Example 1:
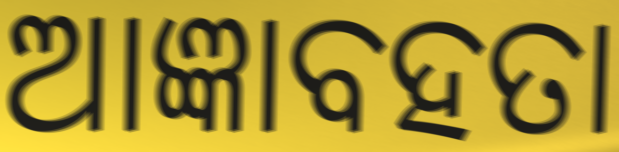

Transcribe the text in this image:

ଆଜ୍ଞାବହତା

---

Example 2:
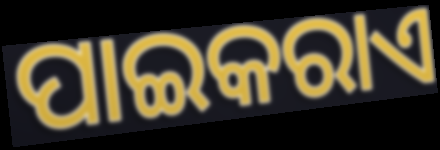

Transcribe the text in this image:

ପାଇକରାଏ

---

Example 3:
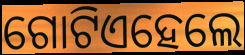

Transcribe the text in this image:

ଗୋଟିଏହେଲେ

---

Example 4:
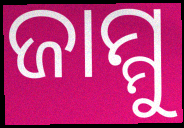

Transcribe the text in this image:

ଜାମ୍ମୁ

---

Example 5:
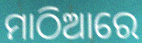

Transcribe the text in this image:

ମାଠିଆରେ